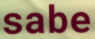
sabe